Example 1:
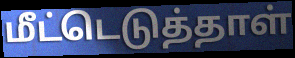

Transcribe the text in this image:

மீட்டெடுத்தாள்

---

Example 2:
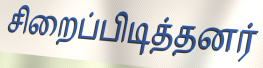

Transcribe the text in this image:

சிறைப்பிடித்தனர்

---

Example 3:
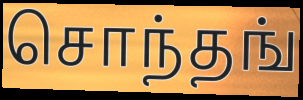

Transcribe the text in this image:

சொந்தங்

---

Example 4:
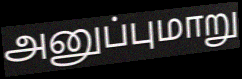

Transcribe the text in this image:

அனுப்புமாறு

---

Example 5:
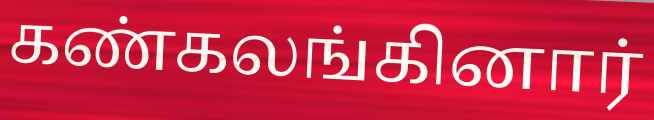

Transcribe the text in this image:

கண்கலங்கினார்